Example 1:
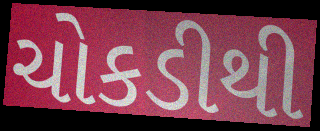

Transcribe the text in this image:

ચોકડીથી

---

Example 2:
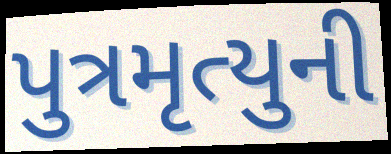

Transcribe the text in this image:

પુત્રમૃત્યુની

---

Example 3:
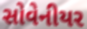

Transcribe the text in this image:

સોવેનીયર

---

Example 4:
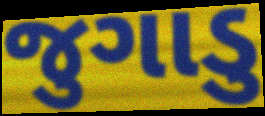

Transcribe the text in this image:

જુગાડુ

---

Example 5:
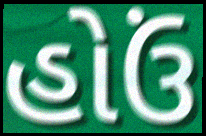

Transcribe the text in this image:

હોઉં